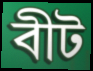
বীট